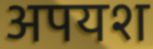
अपयश